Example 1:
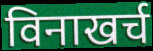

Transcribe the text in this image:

विनाखर्च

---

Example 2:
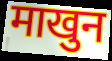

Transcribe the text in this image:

माखुन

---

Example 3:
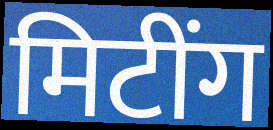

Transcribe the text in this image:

मिटींग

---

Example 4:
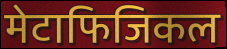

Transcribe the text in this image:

मेटाफिजिकल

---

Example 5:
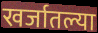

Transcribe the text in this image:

खर्जातल्या